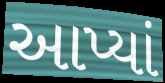
આપ્યાં